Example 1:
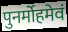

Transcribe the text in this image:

पुनर्मोहमेवं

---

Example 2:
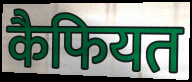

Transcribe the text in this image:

कैफियत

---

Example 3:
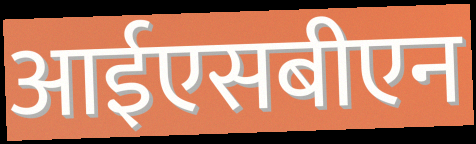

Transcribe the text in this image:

आईएसबीएन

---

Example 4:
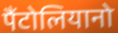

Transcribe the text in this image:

पैंटोलियानो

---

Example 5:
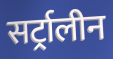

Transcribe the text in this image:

सर्ट्रालीन